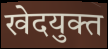
खेदयुक्त